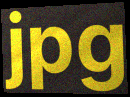
jpg